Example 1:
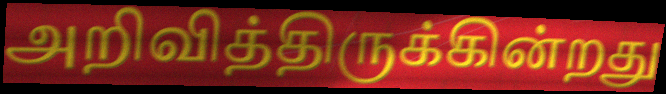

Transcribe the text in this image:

அறிவித்திருக்கின்றது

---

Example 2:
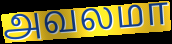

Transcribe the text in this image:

அவலமா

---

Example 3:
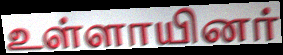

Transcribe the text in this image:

உள்ளாயினர்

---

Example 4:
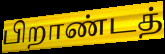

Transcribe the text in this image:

பிறாண்டத்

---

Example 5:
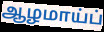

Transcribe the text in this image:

ஆழமாய்ப்